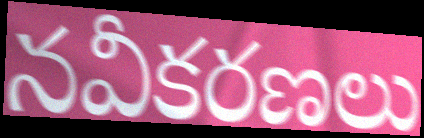
నవీకరణలు